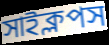
সাইক্লপস